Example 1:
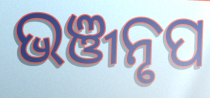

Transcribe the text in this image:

ଭଞ୍ଜନୃପ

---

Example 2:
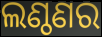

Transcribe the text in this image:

ଲଣ୍ଠଣର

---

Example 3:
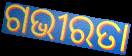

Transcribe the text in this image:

ଗଭୀରତା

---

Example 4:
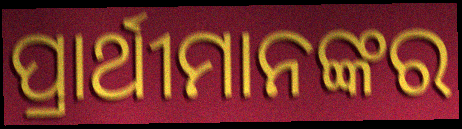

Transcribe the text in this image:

ପ୍ରାର୍ଥୀମାନଙ୍କର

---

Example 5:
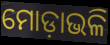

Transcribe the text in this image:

ମୋଡ଼ାଭଳି